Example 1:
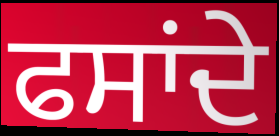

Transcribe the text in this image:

ਫਸਾਂਦੇ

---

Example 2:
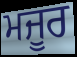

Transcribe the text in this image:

ਮਜੂਰ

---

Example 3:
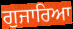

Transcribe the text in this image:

ਗੁਜਾਰਿਆ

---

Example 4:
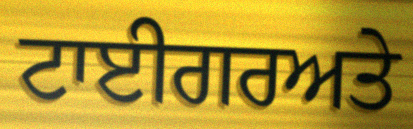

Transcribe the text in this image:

ਟਾਈਗਰਅਤੇ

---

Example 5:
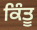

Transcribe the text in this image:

ਕਿੰਤੂ